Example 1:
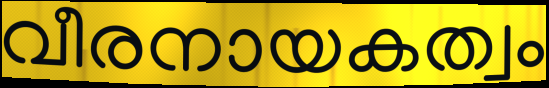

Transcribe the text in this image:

വീരനായകത്വം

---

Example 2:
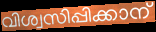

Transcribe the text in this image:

വിശ്വസിപ്പിക്കാന്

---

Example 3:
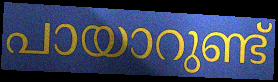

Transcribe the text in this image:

പായാറുണ്ട്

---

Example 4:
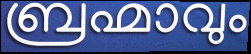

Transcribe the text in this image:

ബ്രഹ്മാവും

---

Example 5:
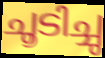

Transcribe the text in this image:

ചൂടിച്ചു